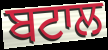
ਬਟਾਲ